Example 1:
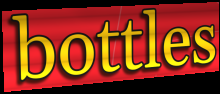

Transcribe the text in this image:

bottles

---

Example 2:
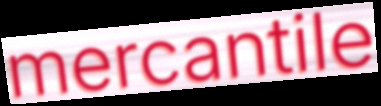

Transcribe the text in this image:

mercantile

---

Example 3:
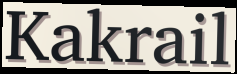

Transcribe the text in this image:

Kakrail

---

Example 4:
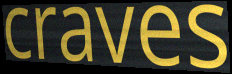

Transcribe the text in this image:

craves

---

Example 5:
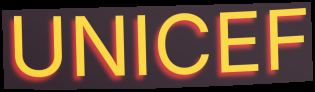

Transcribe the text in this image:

UNICEF